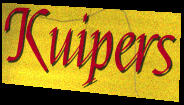
Kuipers